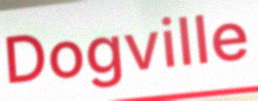
Dogville